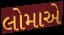
લોમાએ